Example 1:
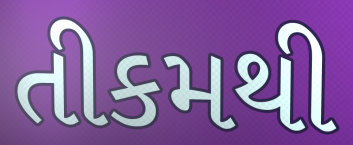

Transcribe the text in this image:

તીકમથી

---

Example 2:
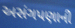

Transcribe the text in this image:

અસંગપણાની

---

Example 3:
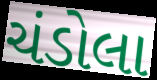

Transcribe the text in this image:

ચંડોલા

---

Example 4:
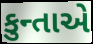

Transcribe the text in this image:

કુન્તાએ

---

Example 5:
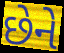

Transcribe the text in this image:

છેને